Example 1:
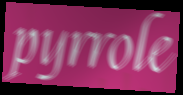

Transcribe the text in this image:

pyrrole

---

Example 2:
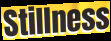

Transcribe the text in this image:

Stillness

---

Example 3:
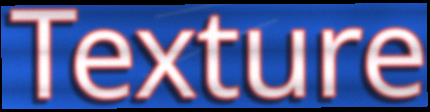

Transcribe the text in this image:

Texture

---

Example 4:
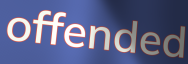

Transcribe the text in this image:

offended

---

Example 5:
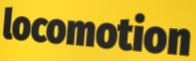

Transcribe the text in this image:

locomotion